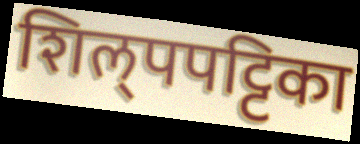
शिल्पपट्टिका